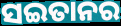
ସଇତାନର